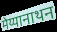
मेय्यानाथन